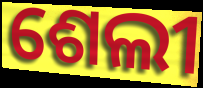
ଶେଲୀ